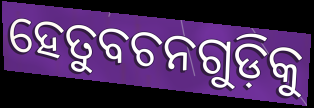
ହେତୁବଚନଗୁଡ଼ିକୁ